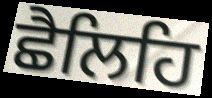
ਛੈਲਿਹਿ